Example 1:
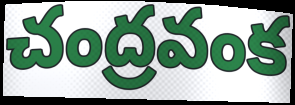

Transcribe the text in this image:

చంద్రవంక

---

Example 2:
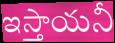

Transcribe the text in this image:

ఇస్తాయనీ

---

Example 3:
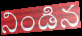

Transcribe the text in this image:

నిండిన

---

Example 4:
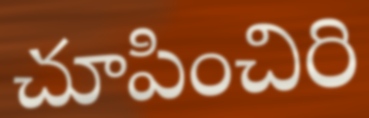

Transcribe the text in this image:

చూపించిరి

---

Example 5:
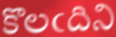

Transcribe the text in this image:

కొలఁదిని